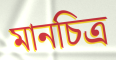
মানচিত্র